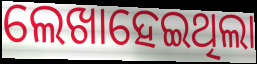
ଲେଖାହେଇଥିଲା